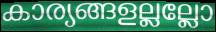
കാര്യങ്ങളല്ലല്ലോ